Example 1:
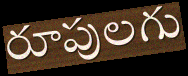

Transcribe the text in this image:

రూపులగు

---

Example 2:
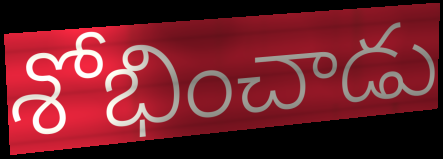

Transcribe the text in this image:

శోభించాడు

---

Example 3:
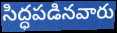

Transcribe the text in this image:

సిద్ధపడినవారు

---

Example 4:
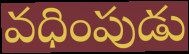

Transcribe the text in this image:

వధింపుడు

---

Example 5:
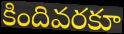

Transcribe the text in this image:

కిందివరకూ